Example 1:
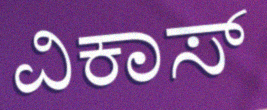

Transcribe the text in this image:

ವಿಕಾಸ್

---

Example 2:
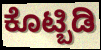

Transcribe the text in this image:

ಕೊಟ್ಬಿಡಿ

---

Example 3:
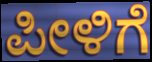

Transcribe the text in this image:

ಪೀಳಿಗೆ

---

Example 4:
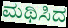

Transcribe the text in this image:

ಮಥಿಸಿದ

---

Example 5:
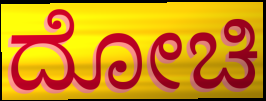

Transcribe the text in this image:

ದೋಚಿ